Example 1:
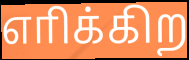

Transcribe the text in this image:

எரிக்கிற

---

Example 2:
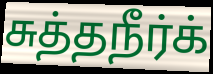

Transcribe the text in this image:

சுத்தநீர்க்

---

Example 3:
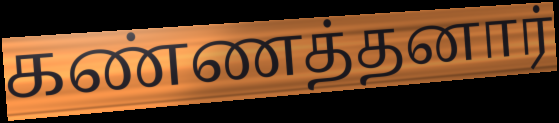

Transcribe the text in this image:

கண்ணத்தனார்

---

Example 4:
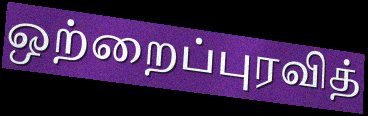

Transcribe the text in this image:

ஒற்றைப்புரவித்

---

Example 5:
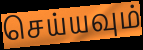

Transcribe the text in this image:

செய்யவும்